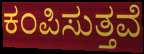
ಕಂಪಿಸುತ್ತವೆ